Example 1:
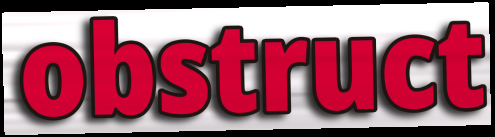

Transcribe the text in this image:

obstruct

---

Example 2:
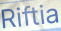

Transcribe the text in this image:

Riftia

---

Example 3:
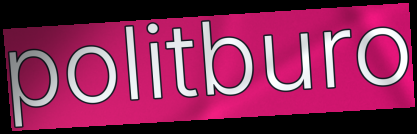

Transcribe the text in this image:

politburo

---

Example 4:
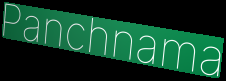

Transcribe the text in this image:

Panchnama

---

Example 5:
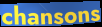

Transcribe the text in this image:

chansons